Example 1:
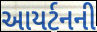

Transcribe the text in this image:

આયર્ટનની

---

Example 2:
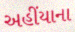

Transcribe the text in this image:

અહીંયાના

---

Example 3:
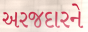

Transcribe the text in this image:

અરજદારને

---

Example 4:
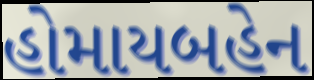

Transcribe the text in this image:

હોમાયબહેન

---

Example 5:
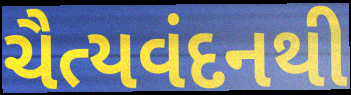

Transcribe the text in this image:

ચૈત્યવંદનથી